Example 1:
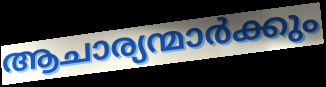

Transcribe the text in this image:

ആചാര്യന്മാർക്കും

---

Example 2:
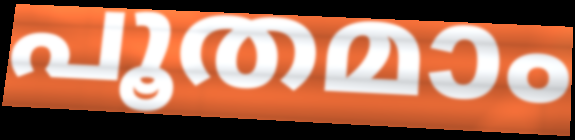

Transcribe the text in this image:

പൂതമാം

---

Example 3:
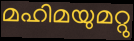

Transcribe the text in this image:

മഹിമയുമറ്റു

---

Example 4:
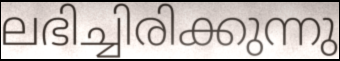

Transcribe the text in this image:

ലഭിച്ചിരിക്കുന്നു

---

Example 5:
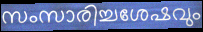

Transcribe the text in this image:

സംസാരിച്ചശേഷവും